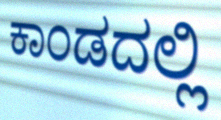
ಕಾಂಡದಲ್ಲಿ